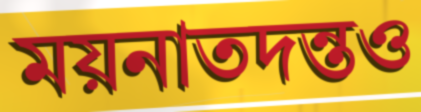
ময়নাতদন্তও